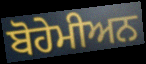
ਬੋਹੇਮੀਅਨ